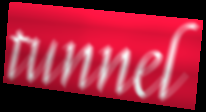
tunnel